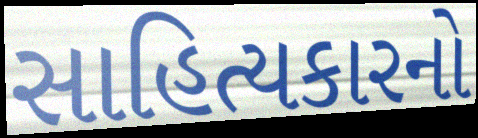
સાહિત્યકારનો